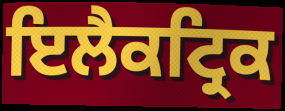
ਇਲੈਕਟ੍ਰਿਕ